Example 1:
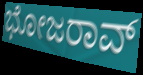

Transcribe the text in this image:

ಭೋಜರಾವ್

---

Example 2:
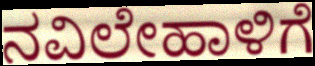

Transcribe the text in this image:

ನವಿಲೇಹಾಳಿಗೆ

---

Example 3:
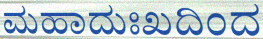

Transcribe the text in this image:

ಮಹಾದುಃಖದಿಂದ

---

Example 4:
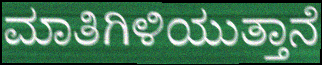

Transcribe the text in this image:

ಮಾತಿಗಿಳಿಯುತ್ತಾನೆ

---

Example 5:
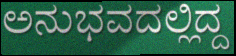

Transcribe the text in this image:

ಅನುಭವದಲ್ಲಿದ್ದ